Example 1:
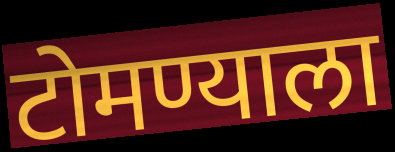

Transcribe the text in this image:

टोमण्याला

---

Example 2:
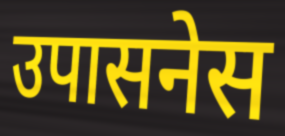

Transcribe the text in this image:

उपासनेस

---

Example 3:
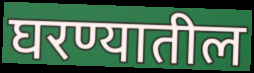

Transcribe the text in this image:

घरण्यातील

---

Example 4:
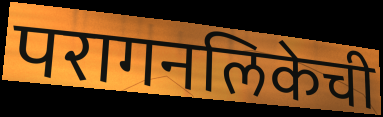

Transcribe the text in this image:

परागनलिकेची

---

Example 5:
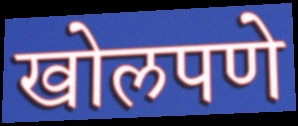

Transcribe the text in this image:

खोलपणे